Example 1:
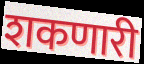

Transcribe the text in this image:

शकणारी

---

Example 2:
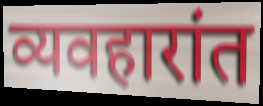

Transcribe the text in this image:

व्यवहारांत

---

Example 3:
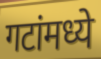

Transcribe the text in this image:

गटांमध्ये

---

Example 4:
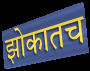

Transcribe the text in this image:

झोकातच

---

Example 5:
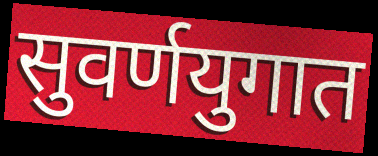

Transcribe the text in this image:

सुवर्णयुगात